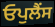
ਓਪੁਲੈਂਸ